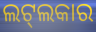
ଲଟ୍‌ଲକାର